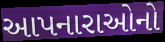
આપનારાઓનો